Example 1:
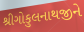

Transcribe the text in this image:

શ્રીગોકુલનાથજીને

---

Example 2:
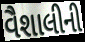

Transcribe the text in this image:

વૈશાલીની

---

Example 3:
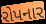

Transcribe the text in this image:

રોપનાર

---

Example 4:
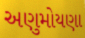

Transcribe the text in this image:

અણુમોયણા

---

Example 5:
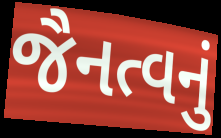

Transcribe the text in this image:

જૈનત્વનું